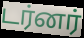
டர்னர்